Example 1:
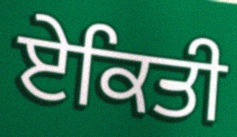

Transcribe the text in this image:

ਏਕਿਤੀ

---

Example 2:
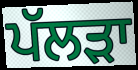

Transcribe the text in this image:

ਪੱਲੜਾ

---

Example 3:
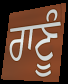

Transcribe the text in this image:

ਰਾਣੂੰ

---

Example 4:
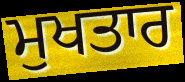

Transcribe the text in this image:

ਮੁਖਤਾਰ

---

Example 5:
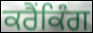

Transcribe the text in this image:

ਕਰੈਂਕਿੰਗ